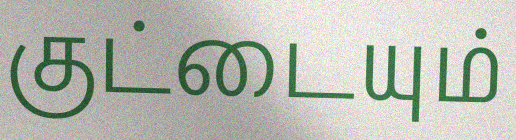
குட்டையும்